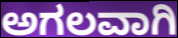
ಅಗಲವಾಗಿ